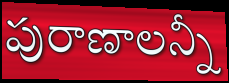
పురాణాలన్నీ